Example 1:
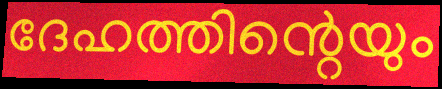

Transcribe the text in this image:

ദേഹത്തിന്റെയും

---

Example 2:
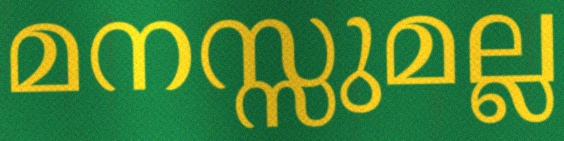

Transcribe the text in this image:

മനസ്സുമല്ല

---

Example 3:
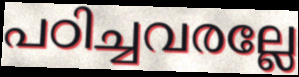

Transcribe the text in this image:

പഠിച്ചവരല്ലേ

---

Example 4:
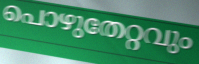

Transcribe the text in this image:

പൊഴുതേറ്റവും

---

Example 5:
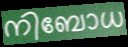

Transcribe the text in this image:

നിബോധ